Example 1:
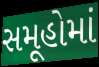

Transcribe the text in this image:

સમૂહોમાં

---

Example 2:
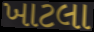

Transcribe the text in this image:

ખાટલા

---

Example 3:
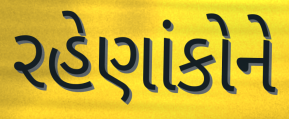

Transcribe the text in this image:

રહેણાંકોને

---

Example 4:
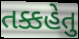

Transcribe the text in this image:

તક્કહેતુ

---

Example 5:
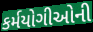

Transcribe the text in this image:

કર્મયોગીઓની